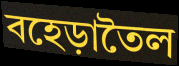
বহেড়াতৈল